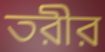
তরীর